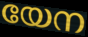
യേന